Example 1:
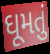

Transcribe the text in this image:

ઘૂમતું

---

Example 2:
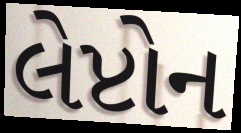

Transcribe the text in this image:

લેપ્ટોન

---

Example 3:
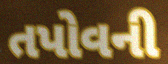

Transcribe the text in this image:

તપોવની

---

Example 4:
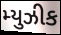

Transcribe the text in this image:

મ્યુઝીક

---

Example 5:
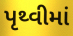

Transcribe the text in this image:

પૃથ્વીમાં